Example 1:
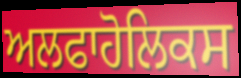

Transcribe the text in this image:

ਅਲਫਾਹੋਲਿਕਸ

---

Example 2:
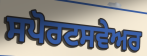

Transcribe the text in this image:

ਸਪੋਰਟਸਵੇਅਰ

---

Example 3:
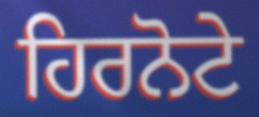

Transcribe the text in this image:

ਹਿਰਨੋਟੇ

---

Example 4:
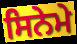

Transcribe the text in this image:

ਸਿਨੇਮੇ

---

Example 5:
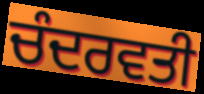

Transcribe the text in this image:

ਚੰਦਰਵਤੀ